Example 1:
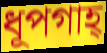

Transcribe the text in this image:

ধূপগাহ্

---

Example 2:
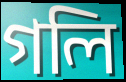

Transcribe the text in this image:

গলি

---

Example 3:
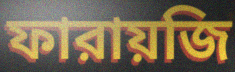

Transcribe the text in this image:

ফারায়জি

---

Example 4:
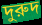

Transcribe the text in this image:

দুরুদ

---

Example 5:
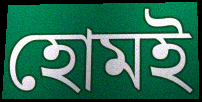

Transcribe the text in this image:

হোমই